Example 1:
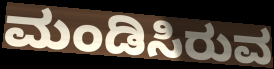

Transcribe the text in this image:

ಮಂಡಿಸಿರುವ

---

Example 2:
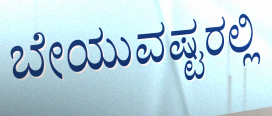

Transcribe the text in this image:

ಬೇಯುವಷ್ಟರಲ್ಲಿ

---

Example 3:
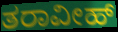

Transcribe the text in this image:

ತರಾವೀಹ್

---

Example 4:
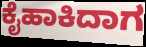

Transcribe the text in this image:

ಕೈಹಾಕಿದಾಗ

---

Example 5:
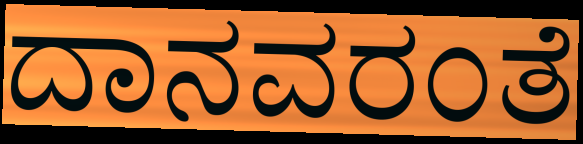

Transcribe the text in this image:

ದಾನವರಂತೆ